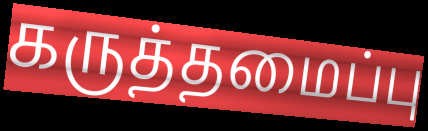
கருத்தமைப்பு